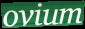
ovium